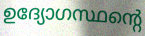
ഉദ്യോഗസ്ഥന്റെ